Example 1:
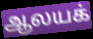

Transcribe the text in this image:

ஆலயக்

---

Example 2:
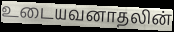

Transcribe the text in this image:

உடையவனாதலின்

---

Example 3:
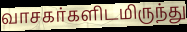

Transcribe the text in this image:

வாசகர்களிடமிருந்து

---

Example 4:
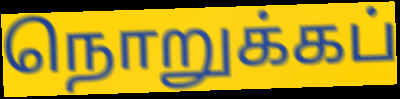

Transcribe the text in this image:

நொறுக்கப்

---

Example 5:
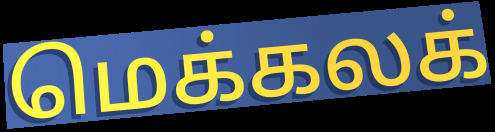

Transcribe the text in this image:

மெக்கலக்